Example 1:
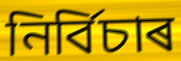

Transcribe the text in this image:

নিৰ্বিচাৰ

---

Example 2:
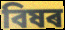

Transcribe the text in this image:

বিষৰ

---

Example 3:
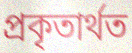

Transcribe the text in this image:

প্ৰকৃতাৰ্থত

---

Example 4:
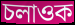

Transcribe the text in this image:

চলাওক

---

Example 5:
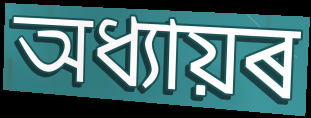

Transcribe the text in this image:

অধ্যায়ৰ